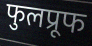
फुलप्रूफ